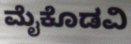
ಮೈಕೊಡವಿ